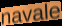
navale